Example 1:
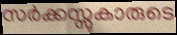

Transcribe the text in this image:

സർക്കസ്സുകാരുടെ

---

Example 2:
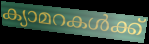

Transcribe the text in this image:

ക്യാമറകൾക്ക്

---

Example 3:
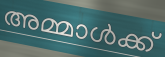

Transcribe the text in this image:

അമ്മാൾക്ക്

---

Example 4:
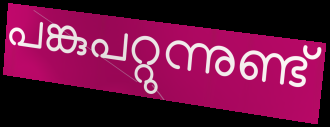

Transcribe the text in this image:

പങ്കുപറ്റുന്നുണ്ട്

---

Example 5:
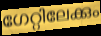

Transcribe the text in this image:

ഗേറ്റിലേക്കും